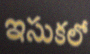
ఇసుకలో